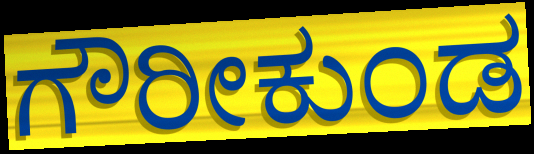
ಗೌರೀಕುಂಡ